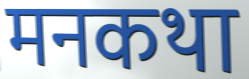
मनकथा